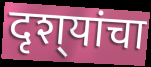
दृश्यांचा